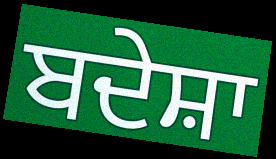
ਬਦੇਸ਼ਾ